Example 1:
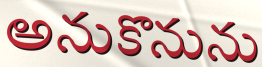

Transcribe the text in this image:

అనుకొనును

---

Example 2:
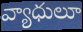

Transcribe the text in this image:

వ్యాధులూ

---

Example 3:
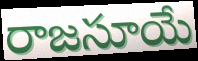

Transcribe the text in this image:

రాజసూయే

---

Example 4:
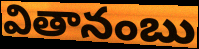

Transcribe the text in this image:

వితానంబు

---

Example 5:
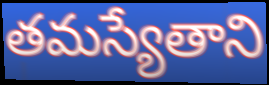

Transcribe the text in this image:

తమస్యేతాని